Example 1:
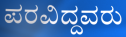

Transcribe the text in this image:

ಪರವಿದ್ದವರು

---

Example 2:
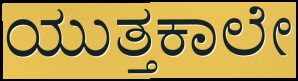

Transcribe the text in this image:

ಯುತ್ತಕಾಲೇ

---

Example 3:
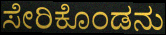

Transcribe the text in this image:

ಸೇರಿಕೊಂಡನು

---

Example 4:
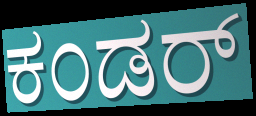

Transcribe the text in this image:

ಕಂಡರ್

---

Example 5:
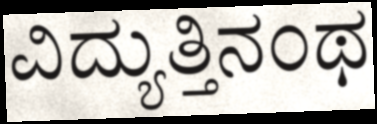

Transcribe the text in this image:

ವಿದ್ಯುತ್ತಿನಂಥ